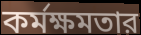
কর্মক্ষমতার